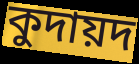
কুদায়দ